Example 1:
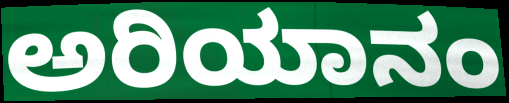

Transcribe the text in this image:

ಅರಿಯಾನಂ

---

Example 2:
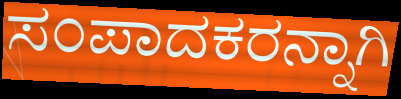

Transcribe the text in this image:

ಸಂಪಾದಕರನ್ನಾಗಿ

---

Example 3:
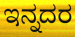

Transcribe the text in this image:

ಇನ್ನದರ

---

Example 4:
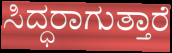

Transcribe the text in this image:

ಸಿದ್ಧರಾಗುತ್ತಾರೆ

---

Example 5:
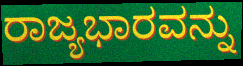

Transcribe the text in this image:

ರಾಜ್ಯಭಾರವನ್ನು